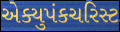
એક્યુપંકચરિસ્ટ